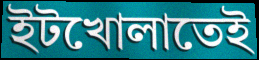
ইটখোলাতেই